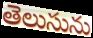
తెలుసును